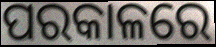
ପରକାଳରେ